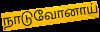
நாடுவோனாய்